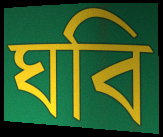
ঘবি